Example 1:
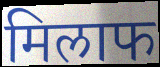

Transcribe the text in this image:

मिलाफ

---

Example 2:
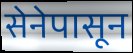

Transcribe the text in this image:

सेनेपासून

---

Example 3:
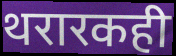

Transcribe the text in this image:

थरारकही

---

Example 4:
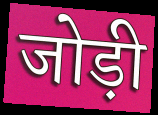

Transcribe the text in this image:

जोड़ी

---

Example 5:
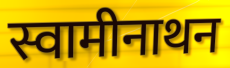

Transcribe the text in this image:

स्वामीनाथन